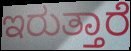
ಇರುತ್ತಾರೆ